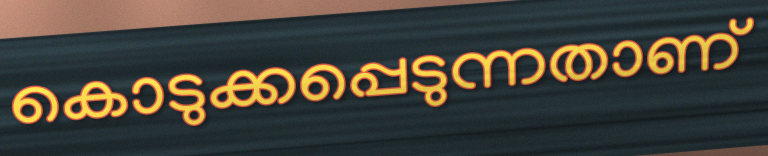
കൊടുക്കപ്പെടുന്നതാണ്